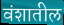
वंशातील